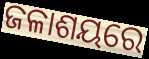
ଜଳାଶୟରେ